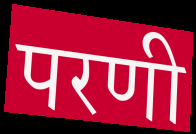
परणी